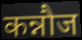
कन्नौज